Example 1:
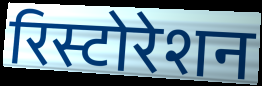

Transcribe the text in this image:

रिस्टोरेशन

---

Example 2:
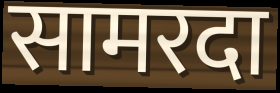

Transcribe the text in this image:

सामरदा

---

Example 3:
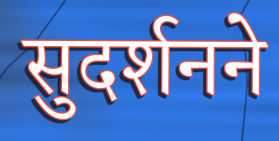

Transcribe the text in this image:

सुदर्शनने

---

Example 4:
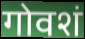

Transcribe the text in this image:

गोवशं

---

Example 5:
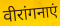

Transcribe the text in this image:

वीरांगनाएं